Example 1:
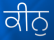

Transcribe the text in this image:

ਕੀਨੁ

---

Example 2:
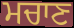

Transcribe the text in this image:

ਮਚਾਣ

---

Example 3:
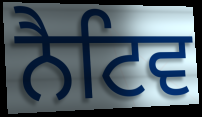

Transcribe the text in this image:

ਨੈਟਿਵ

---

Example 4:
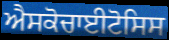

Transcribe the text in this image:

ਐਸਕੋਚਾਈਟੋਸਿਸ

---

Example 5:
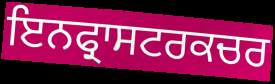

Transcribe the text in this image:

ਇਨਫ੍ਰਾਸਟਰਕਚਰ